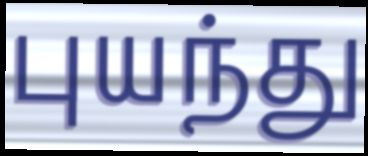
புயந்து